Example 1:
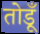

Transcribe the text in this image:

तोडूँ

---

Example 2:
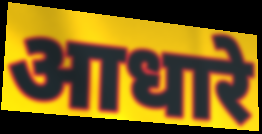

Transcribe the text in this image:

आधारे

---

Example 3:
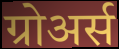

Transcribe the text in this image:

ग्रोअर्स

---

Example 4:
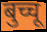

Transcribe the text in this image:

बुच्चू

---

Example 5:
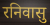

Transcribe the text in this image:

रनिवासु